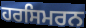
ਹਰਸਿਮਰਨ